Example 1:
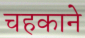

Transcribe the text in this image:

चहकाने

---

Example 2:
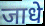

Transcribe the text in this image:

जाधे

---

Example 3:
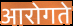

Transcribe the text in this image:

आरोगते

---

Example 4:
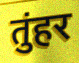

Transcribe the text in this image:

तुंहर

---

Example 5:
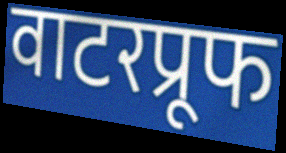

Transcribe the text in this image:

वाटरप्रूफ